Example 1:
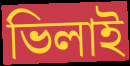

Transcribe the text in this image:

ভিলাই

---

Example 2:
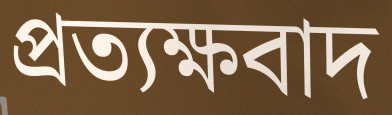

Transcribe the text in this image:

প্রত্যক্ষবাদ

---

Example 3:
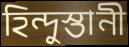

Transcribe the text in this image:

হিন্দুস্তানী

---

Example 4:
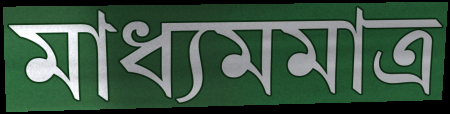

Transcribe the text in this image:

মাধ্যমমাত্র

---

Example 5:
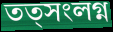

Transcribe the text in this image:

তত্সংলগ্ন